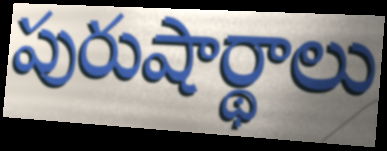
పురుషార్థాలు